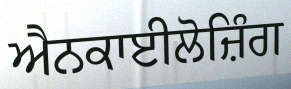
ਐਨਕਾਈਲੋਜ਼ਿੰਗ